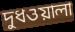
দুধওয়ালা